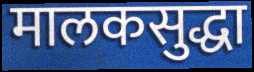
मालकसुद्धा